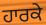
ਹਾਰਕੇ